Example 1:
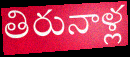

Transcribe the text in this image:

తిరునాళ్ల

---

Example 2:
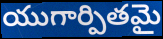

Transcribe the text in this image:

యుగార్పితమై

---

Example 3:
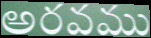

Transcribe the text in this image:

అరవము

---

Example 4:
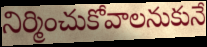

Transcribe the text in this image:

నిర్మించుకోవాలనుకునే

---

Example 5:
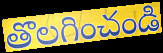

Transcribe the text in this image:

తొలగించండి